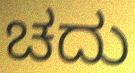
ಚದು